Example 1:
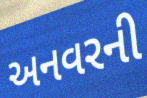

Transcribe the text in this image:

અનવરની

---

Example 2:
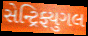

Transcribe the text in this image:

સેન્ટ્રિફ્યુગલ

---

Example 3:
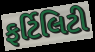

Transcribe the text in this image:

ફર્ટિલિટી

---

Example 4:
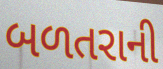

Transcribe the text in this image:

બળતરાની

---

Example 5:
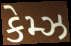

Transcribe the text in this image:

કેમ્ઝ